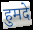
हुमदे